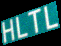
HLTL